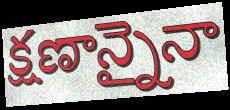
క్షణాన్నైనా